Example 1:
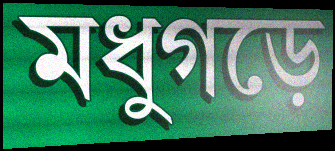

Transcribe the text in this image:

মধুগড়ে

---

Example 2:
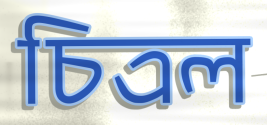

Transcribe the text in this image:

চিত্রল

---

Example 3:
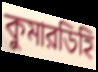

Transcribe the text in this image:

কুমারডিহি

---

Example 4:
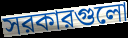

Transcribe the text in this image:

সরকারগুলো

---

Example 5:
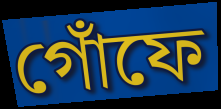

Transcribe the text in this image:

গোঁফে